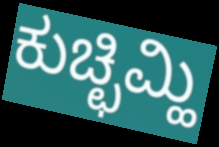
ಕುಚ್ಛಿಮ್ಹಿ